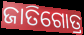
ଜାତିଗୋତ୍ର